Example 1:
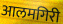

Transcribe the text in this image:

आलमगिरी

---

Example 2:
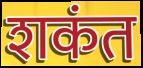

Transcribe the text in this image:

शकंत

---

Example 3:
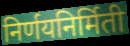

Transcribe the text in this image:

निर्णयनिर्मिती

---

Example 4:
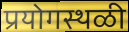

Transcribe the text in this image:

प्रयोगस्थळी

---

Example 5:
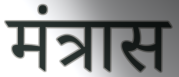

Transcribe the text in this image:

मंत्रास